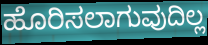
ಹೊರಿಸಲಾಗುವುದಿಲ್ಲ